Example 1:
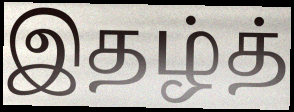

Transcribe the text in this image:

இதழ்த்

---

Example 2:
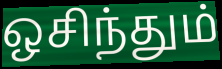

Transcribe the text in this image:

ஒசிந்தும்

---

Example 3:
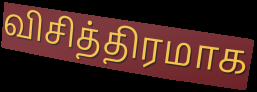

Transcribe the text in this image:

விசித்திரமாக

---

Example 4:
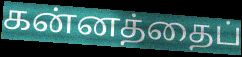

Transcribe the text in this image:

கன்னத்தைப்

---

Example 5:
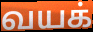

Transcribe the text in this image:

வயக்